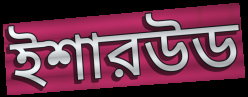
ইশারউড